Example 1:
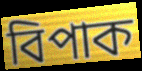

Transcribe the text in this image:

বিপাক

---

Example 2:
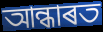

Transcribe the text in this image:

আন্ধাৰত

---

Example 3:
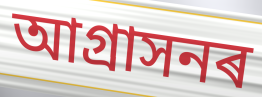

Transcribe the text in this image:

আগ্ৰাসনৰ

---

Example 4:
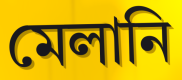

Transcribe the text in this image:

মেলানি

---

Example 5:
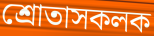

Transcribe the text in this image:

শ্ৰোতাসকলক